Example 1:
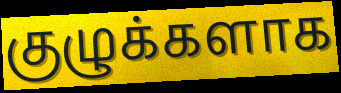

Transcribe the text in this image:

குழுக்களாக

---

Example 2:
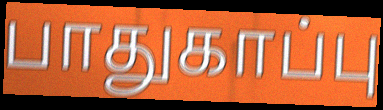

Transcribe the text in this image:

பாதுகாப்பு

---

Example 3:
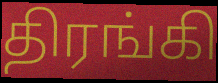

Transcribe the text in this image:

திரங்கி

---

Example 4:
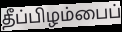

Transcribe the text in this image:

தீப்பிழம்பைப்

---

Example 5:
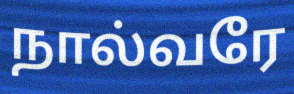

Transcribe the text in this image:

நால்வரே